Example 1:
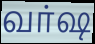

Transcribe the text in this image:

வர்ஷ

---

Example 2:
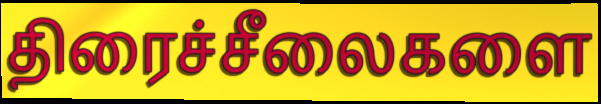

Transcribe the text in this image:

திரைச்சீலைகளை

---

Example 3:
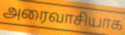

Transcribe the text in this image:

அரைவாசியாக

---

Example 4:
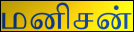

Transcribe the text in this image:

மனிசன்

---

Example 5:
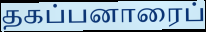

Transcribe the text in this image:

தகப்பனாரைப்